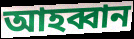
আহব্বান